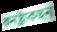
কনষ্ট্ৰাকছন